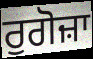
ਰੁਗੋਜ਼ਾ